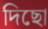
দিছো